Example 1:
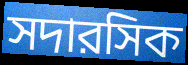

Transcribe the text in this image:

সদারসিক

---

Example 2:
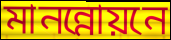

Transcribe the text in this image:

মানন্নোয়নে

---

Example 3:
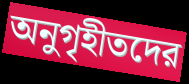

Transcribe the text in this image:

অনুগৃহীতদের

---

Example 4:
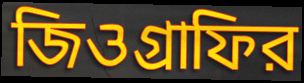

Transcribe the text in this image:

জিওগ্রাফির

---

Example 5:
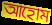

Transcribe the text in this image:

আহোম